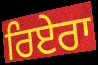
ਰਿਏਰਾ